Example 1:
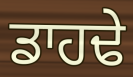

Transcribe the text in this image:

ਡਾਹਢੇ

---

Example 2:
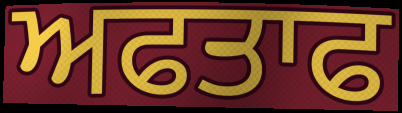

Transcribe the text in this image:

ਅਫਤਾਫ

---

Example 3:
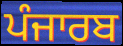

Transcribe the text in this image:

ਪੰਜਾਰਬ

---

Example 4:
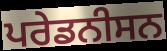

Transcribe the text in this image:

ਪਰੇਡਨੀਸਨ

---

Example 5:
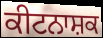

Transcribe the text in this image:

ਕੀਟਨਾਸ਼ਕ